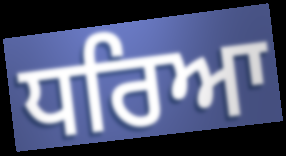
ਧਰਿਆ